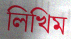
লিখিম